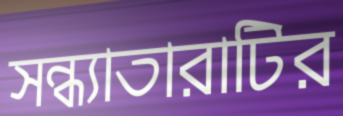
সন্ধ্যাতারাটির